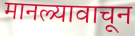
मानल्यावाचून